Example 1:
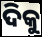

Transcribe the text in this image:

ଦିକୁ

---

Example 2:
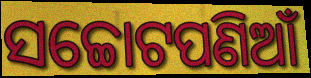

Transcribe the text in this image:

ସଚ୍ଚୋଟପଣିଆଁ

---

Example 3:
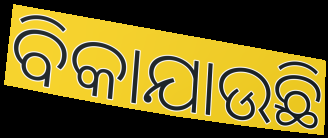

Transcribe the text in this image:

ବିକାଯାଉଛି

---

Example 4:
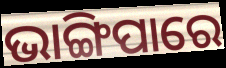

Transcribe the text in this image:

ଭାଙ୍ଗିପାରେ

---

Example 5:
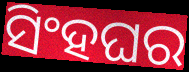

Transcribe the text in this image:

ସିଂହଘର